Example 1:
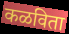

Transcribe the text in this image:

कळविता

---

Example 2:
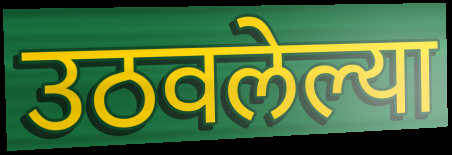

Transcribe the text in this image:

उठवलेल्या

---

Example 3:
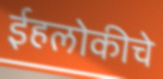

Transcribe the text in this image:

ईहलोकीचे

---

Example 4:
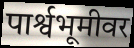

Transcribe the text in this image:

पार्श्वभूमीवर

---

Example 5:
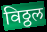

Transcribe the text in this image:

विठ्ठल